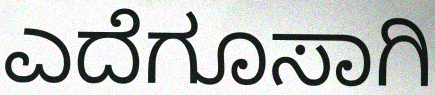
ಎದೆಗೂಸಾಗಿ